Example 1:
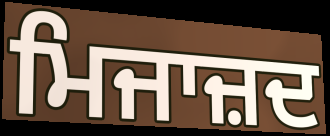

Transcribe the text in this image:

ਮਿਜਾਜ਼ਦ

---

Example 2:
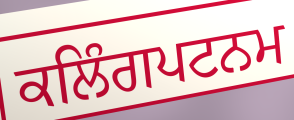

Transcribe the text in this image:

ਕਲਿੰਗਪਟਨਮ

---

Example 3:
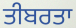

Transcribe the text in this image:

ਤੀਬਰਤਾ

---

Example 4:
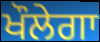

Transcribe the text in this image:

ਖੌਲੇਗਾ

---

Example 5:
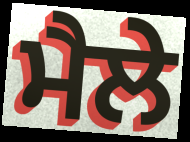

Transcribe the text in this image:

ਮੈਲੇ